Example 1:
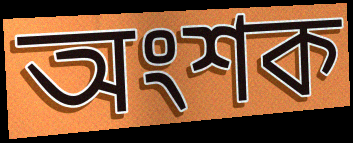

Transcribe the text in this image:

অংশক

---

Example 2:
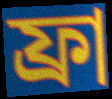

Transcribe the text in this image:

ফ্ৰা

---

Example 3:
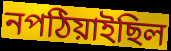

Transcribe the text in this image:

নপঠিয়াইছিল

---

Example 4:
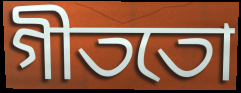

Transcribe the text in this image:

গীততো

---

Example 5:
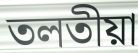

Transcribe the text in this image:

তলতীয়া